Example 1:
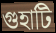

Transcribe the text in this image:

গুহাটি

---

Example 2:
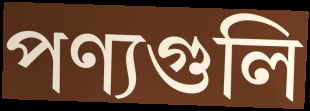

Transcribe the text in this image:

পণ্যগুলি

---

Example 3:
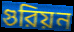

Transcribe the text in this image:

গুরিয়ন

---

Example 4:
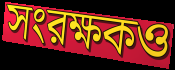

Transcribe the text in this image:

সংরক্ষকও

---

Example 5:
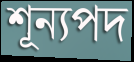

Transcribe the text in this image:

শূন্যপদ